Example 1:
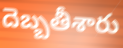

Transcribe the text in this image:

దెబ్బతీశారు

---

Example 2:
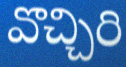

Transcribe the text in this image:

వొచ్చిరి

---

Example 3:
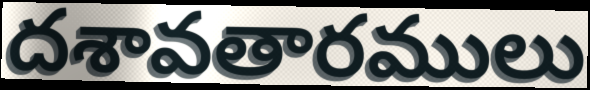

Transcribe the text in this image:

దశావతారములు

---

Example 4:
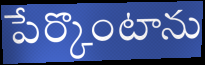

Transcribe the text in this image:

పేర్కొంటాను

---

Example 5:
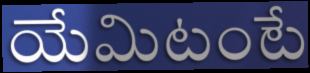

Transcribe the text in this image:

యేమిటంటే